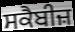
ਸਕੈਬੀਜ਼